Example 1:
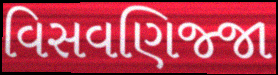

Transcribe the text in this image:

વિસવણિજ્જા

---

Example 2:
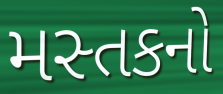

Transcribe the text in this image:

મસ્તકનો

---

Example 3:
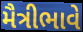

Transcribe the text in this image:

મૈત્રીભાવે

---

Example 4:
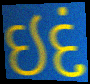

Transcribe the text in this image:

ઇદં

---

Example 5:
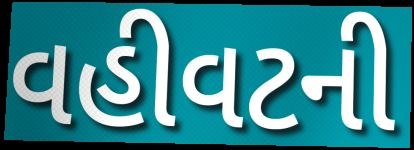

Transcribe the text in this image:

વહીવટની